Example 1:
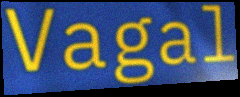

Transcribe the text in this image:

Vagal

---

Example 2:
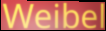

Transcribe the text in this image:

Weibel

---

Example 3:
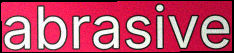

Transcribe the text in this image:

abrasive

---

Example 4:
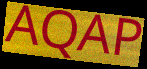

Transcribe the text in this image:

AQAP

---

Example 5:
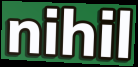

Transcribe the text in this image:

nihil